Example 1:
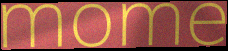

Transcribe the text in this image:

mome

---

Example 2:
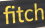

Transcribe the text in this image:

fitch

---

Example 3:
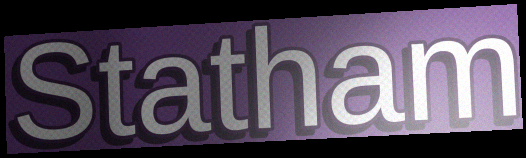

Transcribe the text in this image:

Statham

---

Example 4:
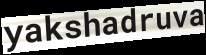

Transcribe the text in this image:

yakshadruva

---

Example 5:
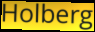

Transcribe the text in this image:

Holberg